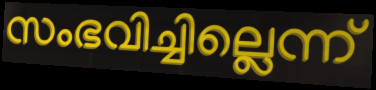
സംഭവിച്ചില്ലെന്ന്